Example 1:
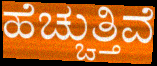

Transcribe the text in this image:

ಹೆಚ್ಚುತ್ತಿವೆ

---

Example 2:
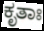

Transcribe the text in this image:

ಕೃತಾಃ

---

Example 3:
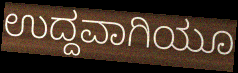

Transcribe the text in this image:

ಉದ್ದವಾಗಿಯೂ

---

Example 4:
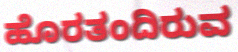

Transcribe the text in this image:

ಹೊರತಂದಿರುವ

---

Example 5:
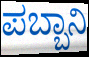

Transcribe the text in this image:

ಪಬ್ಬಾನಿ